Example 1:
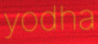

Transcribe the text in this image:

yodha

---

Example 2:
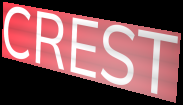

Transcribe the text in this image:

CREST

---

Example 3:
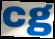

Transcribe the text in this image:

cg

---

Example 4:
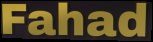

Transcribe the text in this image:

Fahad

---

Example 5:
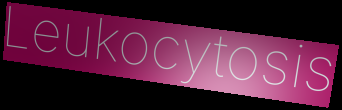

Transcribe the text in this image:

Leukocytosis